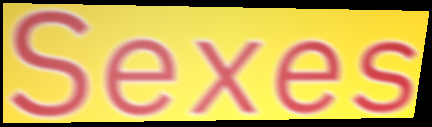
Sexes